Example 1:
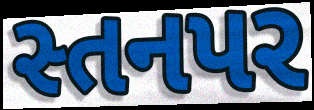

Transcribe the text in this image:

સ્તનપર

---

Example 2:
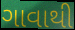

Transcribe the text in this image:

ગાવાથી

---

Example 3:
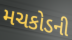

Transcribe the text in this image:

મચકોડની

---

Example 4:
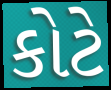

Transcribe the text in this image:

કોટે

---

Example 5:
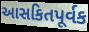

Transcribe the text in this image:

આસકિતપૂર્વક